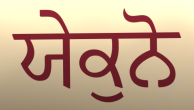
ਯੇਕੁਨੋ